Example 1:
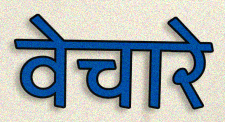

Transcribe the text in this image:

वेचारे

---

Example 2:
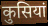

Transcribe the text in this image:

कुसियां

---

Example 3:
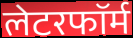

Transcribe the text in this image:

लेटरफॉर्म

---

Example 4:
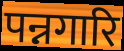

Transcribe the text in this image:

पन्नगारि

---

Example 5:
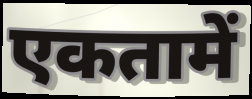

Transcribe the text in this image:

एकतामें